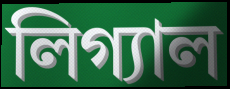
লিগ্যাল